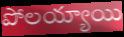
పోలయ్యాయి